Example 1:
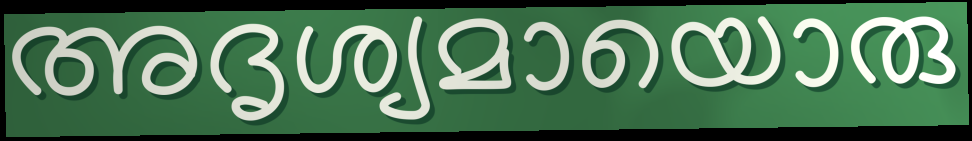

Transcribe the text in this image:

അദൃശ്യമായൊരു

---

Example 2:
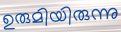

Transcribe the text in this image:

ഉരുമിയിരുന്നു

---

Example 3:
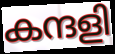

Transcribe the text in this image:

കന്ദളി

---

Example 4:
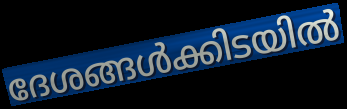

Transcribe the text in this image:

ദേശങ്ങൾക്കിടയിൽ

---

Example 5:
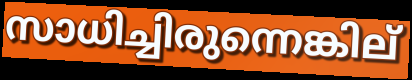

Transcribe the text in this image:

സാധിച്ചിരുന്നെങ്കില്